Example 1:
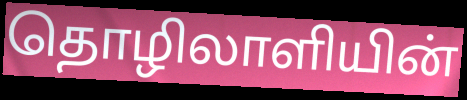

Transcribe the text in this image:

தொழிலாளியின்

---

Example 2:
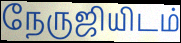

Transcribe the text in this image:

நேருஜியிடம்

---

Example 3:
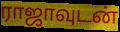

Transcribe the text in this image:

ராஜாவுடன்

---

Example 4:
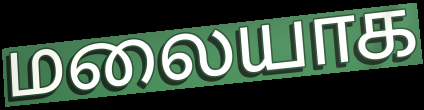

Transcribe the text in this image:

மலையாக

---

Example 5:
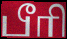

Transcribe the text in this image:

பீரி